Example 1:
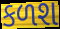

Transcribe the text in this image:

કળશ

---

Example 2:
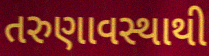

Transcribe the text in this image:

તરુણાવસ્થાથી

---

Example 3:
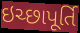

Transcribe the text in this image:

ઇચ્છાપૂર્તિ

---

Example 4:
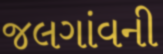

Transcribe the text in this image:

જલગાંવની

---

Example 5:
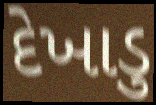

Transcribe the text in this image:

દેખાડુ